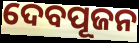
ଦେବପୂଜନ